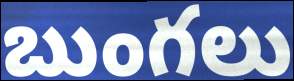
బుంగలు